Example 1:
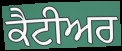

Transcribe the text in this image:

ਕੈਟੀਅਰ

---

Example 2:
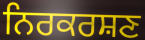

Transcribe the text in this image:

ਨਿਰਕਰਸ਼ਣ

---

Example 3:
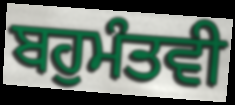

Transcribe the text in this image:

ਬਹੁਮੰਤਵੀ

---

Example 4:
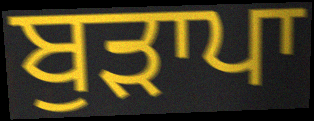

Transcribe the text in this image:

ਬੁੜਾਪਾ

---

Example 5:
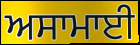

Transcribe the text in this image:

ਅਸਾਮਾਈ